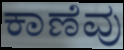
ಕಾಣೆವು